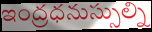
ఇంద్రధనుస్సుల్ని